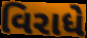
વિરાધે